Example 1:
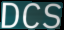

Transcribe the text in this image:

DCS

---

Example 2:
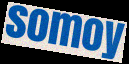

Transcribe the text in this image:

somoy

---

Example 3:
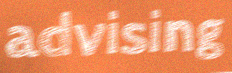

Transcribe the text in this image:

advising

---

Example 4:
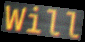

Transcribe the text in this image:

Will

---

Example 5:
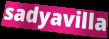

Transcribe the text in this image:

sadyavilla